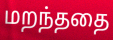
மறந்ததை